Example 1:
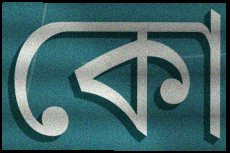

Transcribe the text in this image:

কো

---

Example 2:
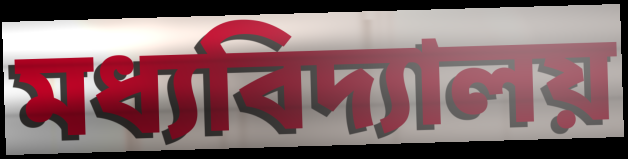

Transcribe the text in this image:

মধ্যবিদ্যালয়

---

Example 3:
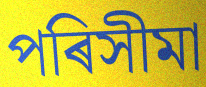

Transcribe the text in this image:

পৰিসীমা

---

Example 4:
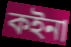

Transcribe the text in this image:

কইনা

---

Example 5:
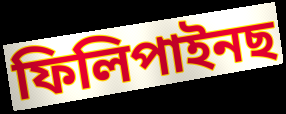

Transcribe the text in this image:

ফিলিপাইনছ